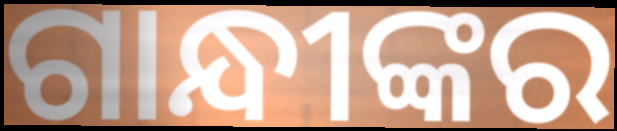
ଗାନ୍ଧୀଙ୍କର